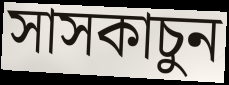
সাসকাচুন